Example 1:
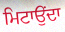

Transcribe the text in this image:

ਮਿਟਾਉਂਦਾ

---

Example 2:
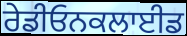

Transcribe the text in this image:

ਰੇਡੀਓਨਕਲਾਈਡ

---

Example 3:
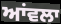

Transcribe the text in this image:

ਆਂਵਲਾ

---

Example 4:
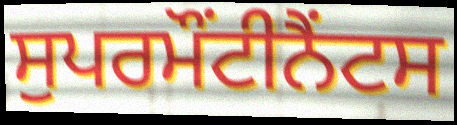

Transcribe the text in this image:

ਸੁਪਰਮੌਂਟੀਨੈਂਟਸ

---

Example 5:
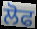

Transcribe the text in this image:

ਲੋਫ